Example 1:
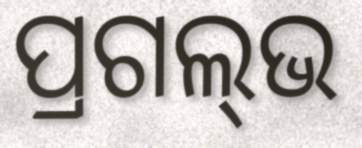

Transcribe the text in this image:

ପ୍ରଗଲ୍‌ଭ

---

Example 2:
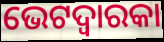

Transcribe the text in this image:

ଭେଟଦ୍ୱାରକା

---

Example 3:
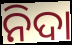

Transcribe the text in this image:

ନିଦା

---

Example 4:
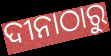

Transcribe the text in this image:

ଦୀନାଠାରୁ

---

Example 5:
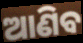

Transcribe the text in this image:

ଆଣିବ